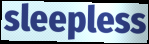
sleepless